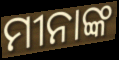
ମୀନାଙ୍କ